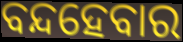
ବନ୍ଦହେବାର